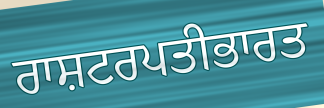
ਰਾਸ਼ਟਰਪਤੀਭਾਰਤ